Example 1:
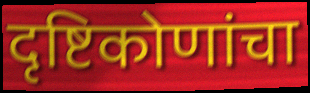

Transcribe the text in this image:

दृष्टिकोणांचा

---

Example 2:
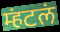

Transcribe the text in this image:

म्हंटलं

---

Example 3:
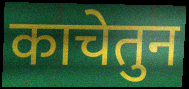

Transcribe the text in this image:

काचेतुन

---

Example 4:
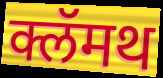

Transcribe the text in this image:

क्लॅमथ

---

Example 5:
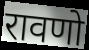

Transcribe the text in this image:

रावणो